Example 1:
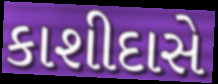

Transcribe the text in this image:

કાશીદાસે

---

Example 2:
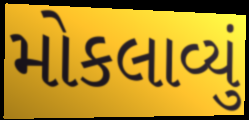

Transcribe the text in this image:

મોકલાવ્યું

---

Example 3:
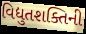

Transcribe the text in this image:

વિદ્યુતશક્તિની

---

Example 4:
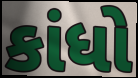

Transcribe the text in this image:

કાંધો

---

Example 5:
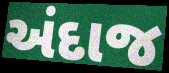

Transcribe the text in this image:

અંદાજ